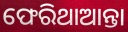
ଫେରିଥାଆନ୍ତା